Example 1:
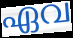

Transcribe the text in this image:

ഏവ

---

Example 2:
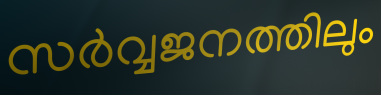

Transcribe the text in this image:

സർവ്വജനത്തിലും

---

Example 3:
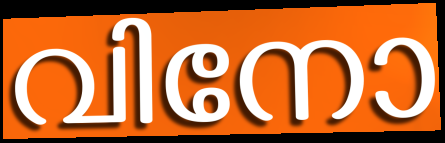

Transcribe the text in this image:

വിനോ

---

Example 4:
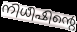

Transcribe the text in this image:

നിധീഷിന്റെ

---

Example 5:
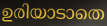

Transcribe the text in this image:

ഉരിയാടാതെ